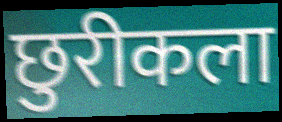
छुरीकला